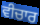
ਵੀਚਾਰ